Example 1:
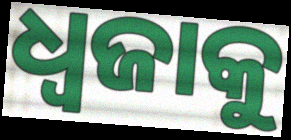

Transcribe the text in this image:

ଧ୍ୱଜାକୁ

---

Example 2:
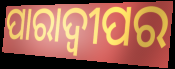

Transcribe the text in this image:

ପାରାଦ୍ବୀପର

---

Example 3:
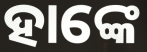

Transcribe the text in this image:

ହାଙ୍କେ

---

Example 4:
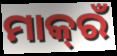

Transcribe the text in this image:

ମାକ୍‌ରଁ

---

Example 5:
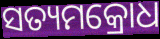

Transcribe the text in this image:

ସତ୍ୟମକ୍ରୋଧ